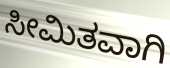
ಸೀಮಿತವಾಗಿ